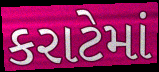
કરાટેમાં